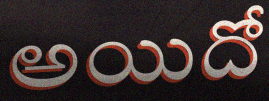
అయిదో